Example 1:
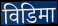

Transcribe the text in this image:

विडिमा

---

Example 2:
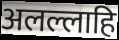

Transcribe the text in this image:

अलल्लाहि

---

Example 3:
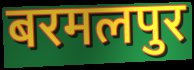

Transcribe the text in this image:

बरमलपुर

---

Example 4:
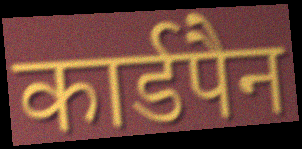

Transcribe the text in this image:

कार्डपैन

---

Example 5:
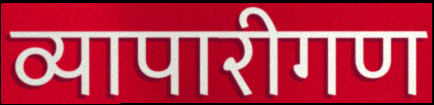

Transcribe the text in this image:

व्यापारीगण